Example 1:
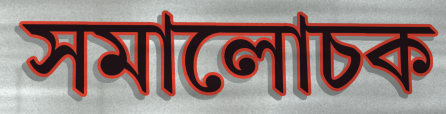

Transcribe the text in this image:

সমালোচক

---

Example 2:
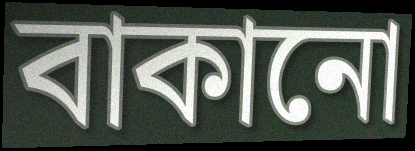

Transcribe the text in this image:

বাকানো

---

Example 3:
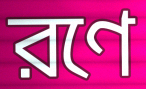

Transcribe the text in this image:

রণে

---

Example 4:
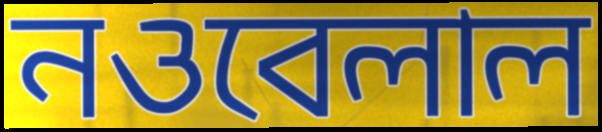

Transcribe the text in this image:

নওবেলাল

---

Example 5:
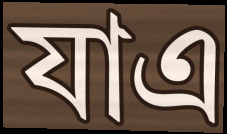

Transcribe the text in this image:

যাএ